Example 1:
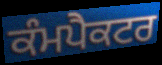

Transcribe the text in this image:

ਕੰਮਪੈਕਟਰ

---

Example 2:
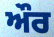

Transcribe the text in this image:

ਔਰ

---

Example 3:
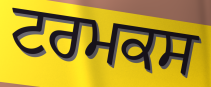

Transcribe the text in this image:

ਟਰਮਕਸ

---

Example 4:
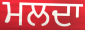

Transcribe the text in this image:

ਮਲਦਾ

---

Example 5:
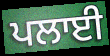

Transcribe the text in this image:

ਪਲਾਈ